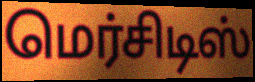
மெர்சிடிஸ்